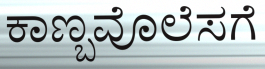
ಕಾಣ್ಬವೊಲೆಸಗೆ